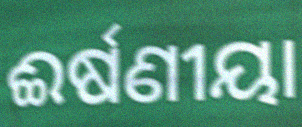
ଈର୍ଷଣୀୟା